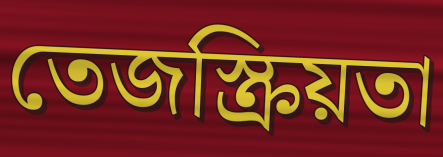
তেজস্ক্রিয়তা